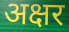
अक्षर